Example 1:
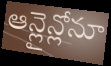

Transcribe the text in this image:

ఆన్లైన్లోనూ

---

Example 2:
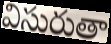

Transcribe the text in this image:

విసురుతా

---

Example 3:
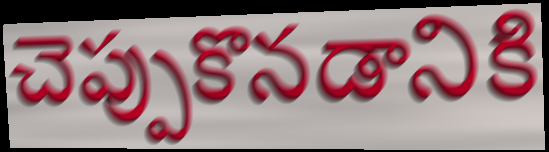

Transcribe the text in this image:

చెప్పుకొనడానికి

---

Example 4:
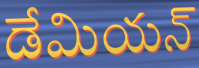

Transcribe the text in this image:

డేమియన్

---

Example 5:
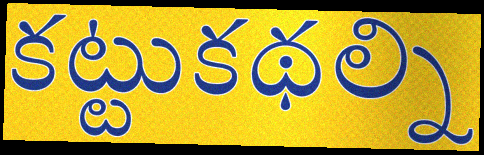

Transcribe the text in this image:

కట్టుకథల్ని